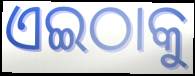
ଏଇଠାକୁ